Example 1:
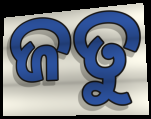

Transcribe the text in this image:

ଜତୁ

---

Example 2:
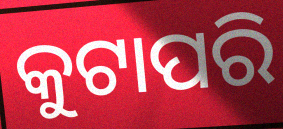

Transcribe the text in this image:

କୁଟାପରି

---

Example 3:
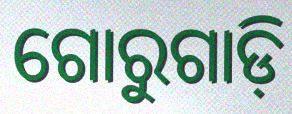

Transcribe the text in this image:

ଗୋରୁଗାଡ଼ି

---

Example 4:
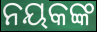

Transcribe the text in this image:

ନୟକଙ୍କ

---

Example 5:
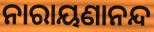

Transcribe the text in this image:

ନାରାୟଣାନନ୍ଦ